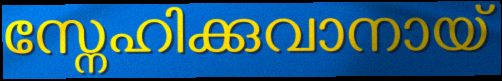
സ്നേഹിക്കുവാനായ്